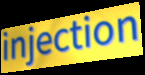
injection